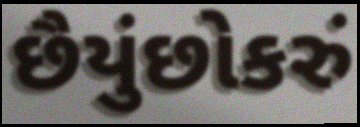
છૈયુંછોકરું